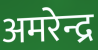
अमरेन्द्र